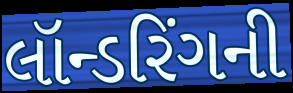
લૉન્ડરિંગની